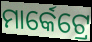
ମାର୍କେଟ୍ରେ